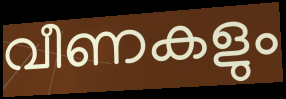
വീണകളും